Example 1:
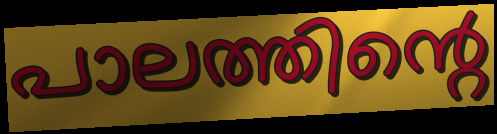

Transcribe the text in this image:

പാലത്തിന്റെ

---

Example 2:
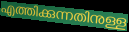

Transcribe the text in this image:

എത്തിക്കുന്നതിനുള്ള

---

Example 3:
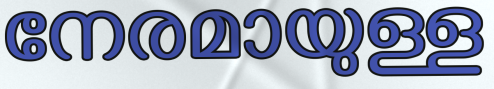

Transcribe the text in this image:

നേരമായുള്ള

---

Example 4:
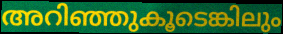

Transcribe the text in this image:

അറിഞ്ഞുകൂടെങ്കിലും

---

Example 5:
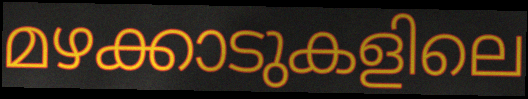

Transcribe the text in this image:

മഴക്കാടുകളിലെ